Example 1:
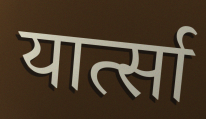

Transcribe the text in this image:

यार्त्सा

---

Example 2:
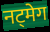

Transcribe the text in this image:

नट्मेग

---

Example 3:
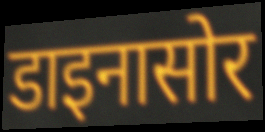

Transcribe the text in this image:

डाइनासोर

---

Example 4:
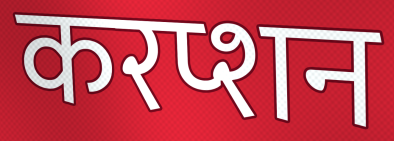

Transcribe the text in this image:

करप्‍शन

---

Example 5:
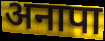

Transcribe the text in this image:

अनापा